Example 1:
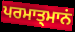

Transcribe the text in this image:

ਪਰਮਾਤ੍ਮਾਨਂ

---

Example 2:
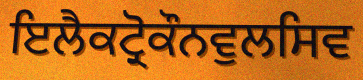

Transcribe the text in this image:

ਇਲੈਕਟ੍ਰੋਕੌਨਵੁਲਸਿਵ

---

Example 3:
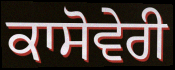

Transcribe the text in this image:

ਕਾਸੋਵੇਰੀ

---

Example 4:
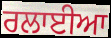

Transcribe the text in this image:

ਰਲਾਈਆ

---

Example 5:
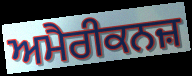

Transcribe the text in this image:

ਅਮੈਰੀਕਨਜ਼